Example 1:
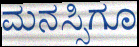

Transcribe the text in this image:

ಮನಸ್ಸಿಗೂ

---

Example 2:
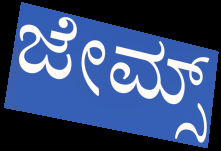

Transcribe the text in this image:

ಜೇಮ್ಸ್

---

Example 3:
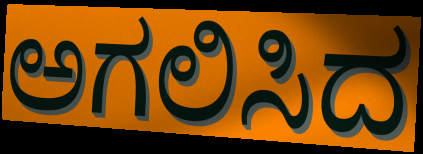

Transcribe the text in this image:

ಅಗಲಿಸಿದ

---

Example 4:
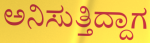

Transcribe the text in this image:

ಅನಿಸುತ್ತಿದ್ದಾಗ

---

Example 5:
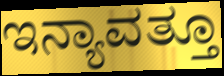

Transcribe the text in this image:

ಇನ್ಯಾವತ್ತೂ